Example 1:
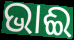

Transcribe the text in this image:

ଭାଈ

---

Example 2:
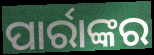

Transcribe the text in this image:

ପାର୍ରାଙ୍କର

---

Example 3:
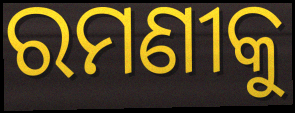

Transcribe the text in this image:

ରମଣୀକୁ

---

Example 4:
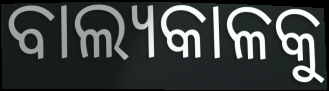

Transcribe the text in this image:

ବାଲ୍ୟକାଳକୁ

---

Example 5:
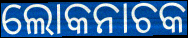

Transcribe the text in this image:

ଲୋକନାଚକ